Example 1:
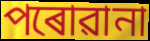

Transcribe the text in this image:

পৰোৱানা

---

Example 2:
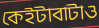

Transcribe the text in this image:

কেইটাবাটাও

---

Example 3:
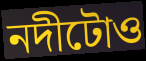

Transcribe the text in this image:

নদীটোও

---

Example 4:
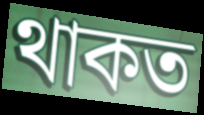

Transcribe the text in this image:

থাকত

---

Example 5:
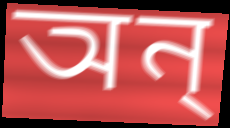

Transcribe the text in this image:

অন্